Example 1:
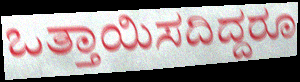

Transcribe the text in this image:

ಒತ್ತಾಯಿಸದಿದ್ದರೂ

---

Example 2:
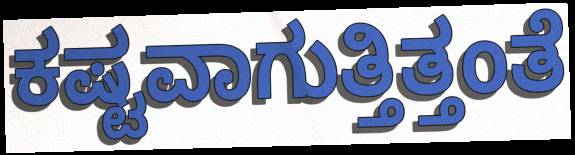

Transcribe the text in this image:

ಕಷ್ಟವಾಗುತ್ತಿತ್ತಂತೆ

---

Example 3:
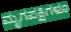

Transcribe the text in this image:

ಮೃಗಪಕ್ಷಿಗಳೂ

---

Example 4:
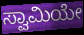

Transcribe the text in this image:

ಸ್ವಾಮಿಯೇ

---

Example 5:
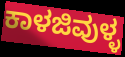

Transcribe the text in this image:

ಕಾಳಜಿವುಳ್ಳ